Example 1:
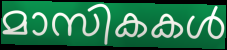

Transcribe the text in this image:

മാസികകൾ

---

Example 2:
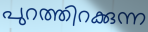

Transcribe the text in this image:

പുറത്തിറക്കുന്ന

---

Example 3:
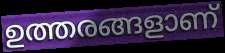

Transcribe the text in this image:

ഉത്തരങ്ങളാണ്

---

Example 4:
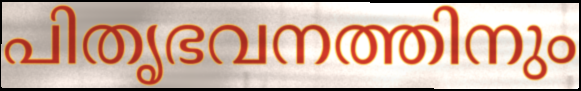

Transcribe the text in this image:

പിതൃഭവനത്തിനും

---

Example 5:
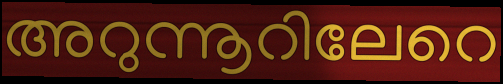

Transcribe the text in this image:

അറുന്നൂറിലേറെ